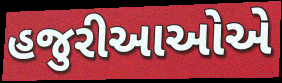
હજુરીઆઓએ